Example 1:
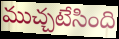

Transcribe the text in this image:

ముచ్చటేసింది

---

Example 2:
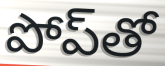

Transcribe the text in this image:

పోప్‌తో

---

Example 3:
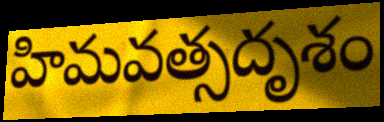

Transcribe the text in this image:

హిమవత్సదృశం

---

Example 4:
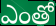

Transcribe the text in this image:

ఎంతో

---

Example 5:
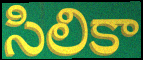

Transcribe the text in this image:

సిలికా